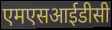
एमएसआईडीसी